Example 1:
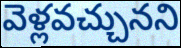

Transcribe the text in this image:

వెళ్లవచ్చునని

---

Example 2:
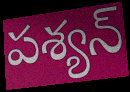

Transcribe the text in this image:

పశ్యన్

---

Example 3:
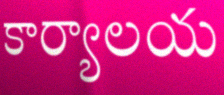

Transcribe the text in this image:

కార్యాలయ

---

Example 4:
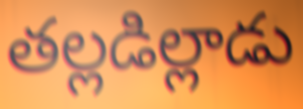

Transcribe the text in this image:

తల్లడిల్లాడు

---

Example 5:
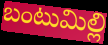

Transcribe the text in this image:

బంటుమిల్లి